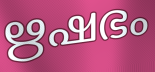
ഋഷഭം